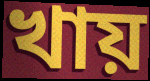
খায়